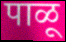
पाळू